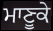
ਮਾਣੂਕੇ